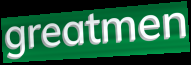
greatmen